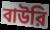
বাউরি